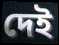
দেই